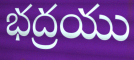
భద్రయు